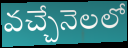
వచ్చేనెలలో